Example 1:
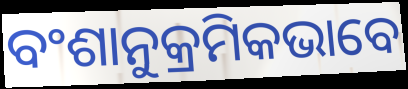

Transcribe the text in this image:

ବଂଶାନୁକ୍ରମିକଭାବେ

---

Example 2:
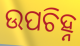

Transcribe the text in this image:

ଉପଚିହ୍ନ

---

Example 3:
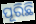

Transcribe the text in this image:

ପୂରିଛି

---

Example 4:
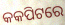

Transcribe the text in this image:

କକପିଟରେ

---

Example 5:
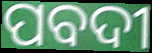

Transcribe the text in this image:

ପବଦୀ